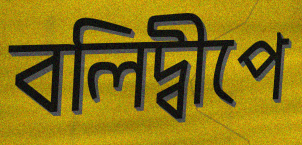
বলিদ্বীপে